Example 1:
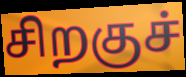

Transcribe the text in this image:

சிறகுச்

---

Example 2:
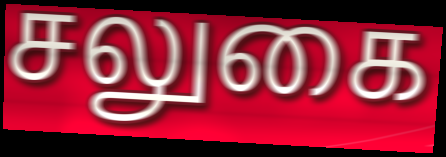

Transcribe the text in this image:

சலுகை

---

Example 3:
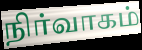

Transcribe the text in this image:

நிர்வாகம்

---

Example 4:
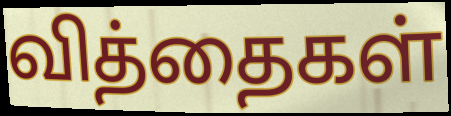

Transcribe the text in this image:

வித்தைகள்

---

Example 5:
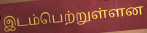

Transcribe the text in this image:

இடம்பெற்றுள்ளன